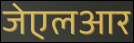
जेएलआर